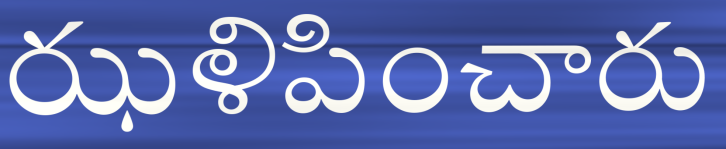
ఝళిపించారు